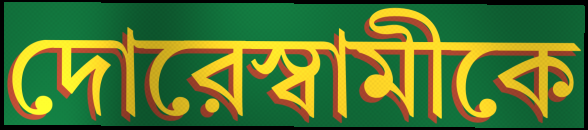
দোরেস্বামীকে